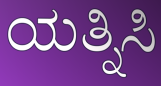
ಯತ್ನಿಸಿ